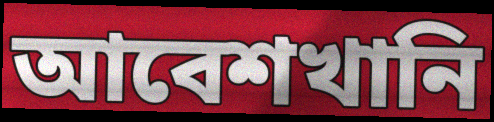
আবেশখানি